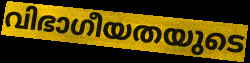
വിഭാഗീയതയുടെ